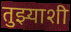
तुझ्याशी